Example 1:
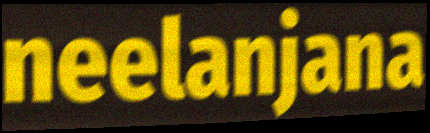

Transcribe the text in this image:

neelanjana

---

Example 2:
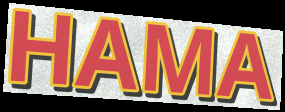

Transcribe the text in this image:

HAMA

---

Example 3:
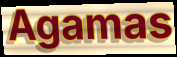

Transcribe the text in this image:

Agamas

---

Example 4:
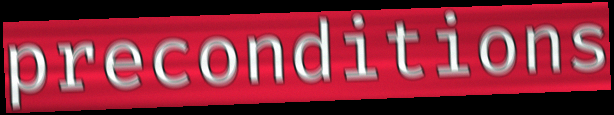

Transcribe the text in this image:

preconditions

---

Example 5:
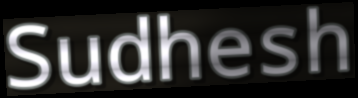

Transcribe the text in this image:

Sudhesh